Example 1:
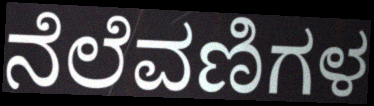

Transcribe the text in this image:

ನೆಲೆವಣಿಗಳ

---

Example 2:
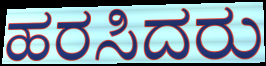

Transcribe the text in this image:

ಹರಸಿದರು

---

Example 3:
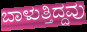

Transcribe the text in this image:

ಬಾಳುತ್ತಿದ್ದವು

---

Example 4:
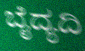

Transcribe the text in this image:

ಬೈದ್ಯದಿ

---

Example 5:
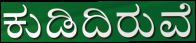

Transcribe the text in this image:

ಕುಡಿದಿರುವೆ